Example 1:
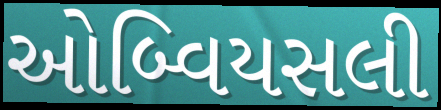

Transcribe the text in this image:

ઓબ્વિયસલી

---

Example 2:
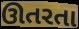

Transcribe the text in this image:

ઊતરતા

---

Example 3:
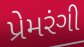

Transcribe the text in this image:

પ્રેમરંગી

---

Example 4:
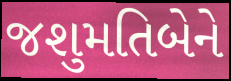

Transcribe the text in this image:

જશુમતિબેને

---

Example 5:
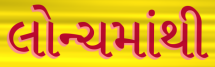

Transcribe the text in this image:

લોન્ચમાંથી